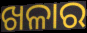
ଖଳାର